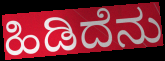
ಹಿಡಿದೆನು